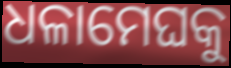
ଧଳାମେଘକୁ